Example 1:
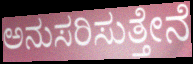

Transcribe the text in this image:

ಅನುಸರಿಸುತ್ತೇನೆ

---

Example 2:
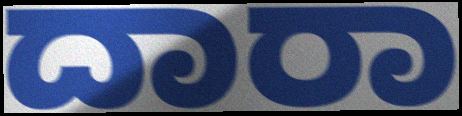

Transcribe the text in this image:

ದಾರಾ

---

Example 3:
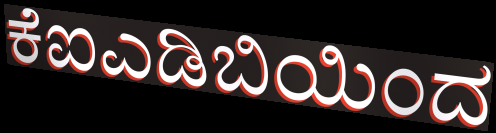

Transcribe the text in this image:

ಕೆಐಎಡಿಬಿಯಿಂದ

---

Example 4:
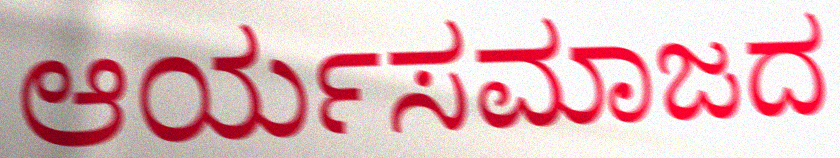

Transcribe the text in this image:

ಆರ್ಯಸಮಾಜದ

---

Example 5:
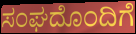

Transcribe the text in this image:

ಸಂಘದೊಂದಿಗೆ